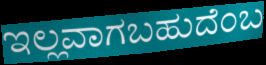
ಇಲ್ಲವಾಗಬಹುದೆಂಬ